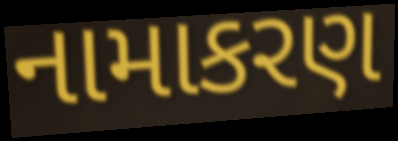
નામાકરણ